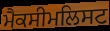
ਮੈਕਸੀਮਲਿਸਟ